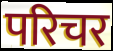
परिचर